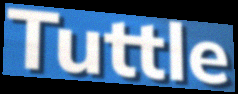
Tuttle